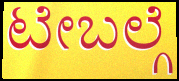
ಟೇಬಲ್ಗೆ